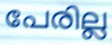
പേരില്ല